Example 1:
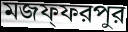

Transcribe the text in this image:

মজফ্ফরপুর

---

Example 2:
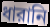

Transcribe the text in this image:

ধারানি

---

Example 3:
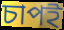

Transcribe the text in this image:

চাপই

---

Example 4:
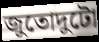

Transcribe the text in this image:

জুতোদুটো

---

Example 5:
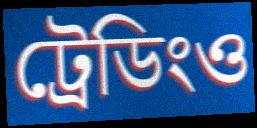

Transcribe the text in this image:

ট্রেডিংও